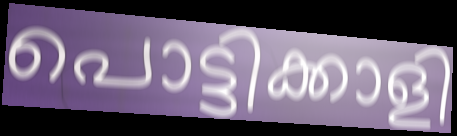
പൊട്ടിക്കാളി